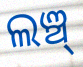
ଲଞ୍ଚ୍